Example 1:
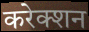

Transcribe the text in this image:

करेक्शन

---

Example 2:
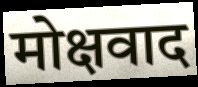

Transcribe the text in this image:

मोक्षवाद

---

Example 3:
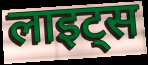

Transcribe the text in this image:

लाइट्स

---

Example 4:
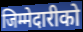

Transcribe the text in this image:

जिम्मेदारीको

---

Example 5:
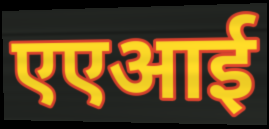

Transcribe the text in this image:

एएआई